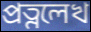
প্রত্নলেখ